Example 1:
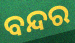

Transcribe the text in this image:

ବନ୍ଦର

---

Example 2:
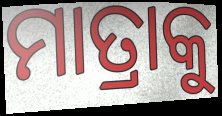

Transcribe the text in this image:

ମାତ୍ରାକୁ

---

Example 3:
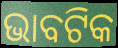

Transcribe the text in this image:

ଭାବଟିକ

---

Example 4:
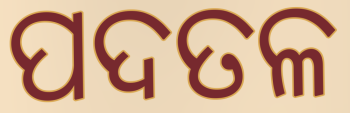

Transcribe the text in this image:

ପଦତଳ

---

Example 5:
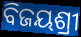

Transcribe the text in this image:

ବିଜୟଶ୍ରୀ